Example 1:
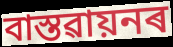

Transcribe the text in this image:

বাস্তৱায়নৰ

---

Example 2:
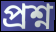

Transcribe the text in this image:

প্ৰশ্ন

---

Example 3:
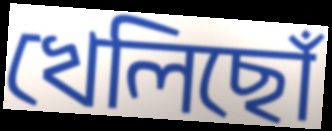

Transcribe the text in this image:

খেলিছোঁ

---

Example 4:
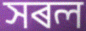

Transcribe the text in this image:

সৰল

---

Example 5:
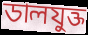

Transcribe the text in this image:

ডালযুক্ত